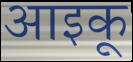
आइकू